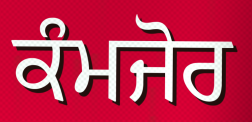
ਕੰਮਜੋਰ